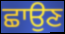
ਛਾਉਣ